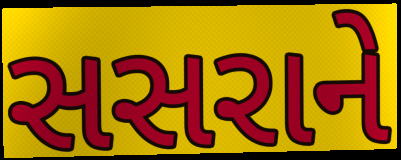
સસરાને